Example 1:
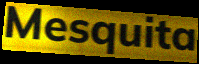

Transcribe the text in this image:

Mesquita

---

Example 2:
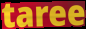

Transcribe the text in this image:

taree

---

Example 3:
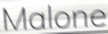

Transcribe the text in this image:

Malone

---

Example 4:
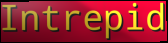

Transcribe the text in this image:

Intrepid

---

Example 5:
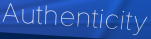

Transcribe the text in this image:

Authenticity